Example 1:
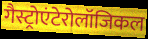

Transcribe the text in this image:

गैस्ट्रोएंटेरोलॉजिकल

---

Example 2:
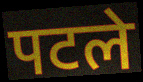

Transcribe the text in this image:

पटले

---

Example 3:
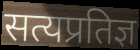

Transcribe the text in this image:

सत्यप्रतिज्ञ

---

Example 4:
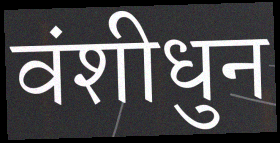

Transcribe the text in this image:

वंशीधुन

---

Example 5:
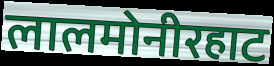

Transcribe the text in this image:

लालमोनीरहाट